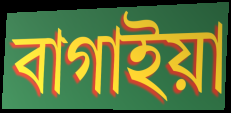
বাগাইয়া